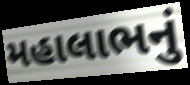
મહાલાભનું